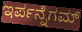
ಇರ್ಪನ್ನೆಗಮ್